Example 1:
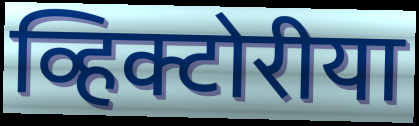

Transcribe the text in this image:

व्हिक्टोरीया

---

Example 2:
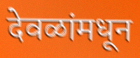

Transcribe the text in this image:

देवळांमधून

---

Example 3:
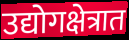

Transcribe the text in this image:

उद्योगक्षेत्रात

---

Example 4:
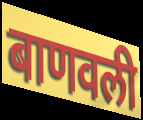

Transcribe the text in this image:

बाणवली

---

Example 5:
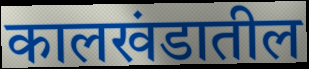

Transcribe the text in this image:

कालखंडातील